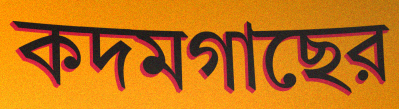
কদমগাছের